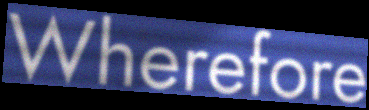
Wherefore